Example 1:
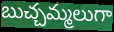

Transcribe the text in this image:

బుచ్చమ్మలుగా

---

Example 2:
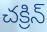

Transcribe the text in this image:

చక్రిన్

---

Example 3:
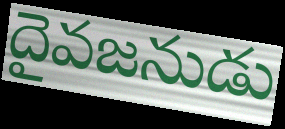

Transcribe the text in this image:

దైవజనుడు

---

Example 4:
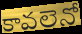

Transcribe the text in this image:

కావలెనో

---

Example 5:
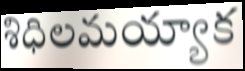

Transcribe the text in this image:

శిధిలమయ్యాక